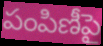
పంపిణీపై